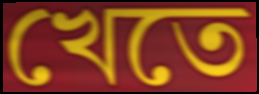
খেতে